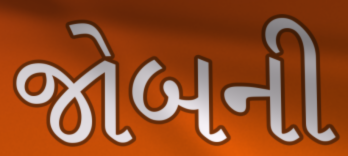
જોબની